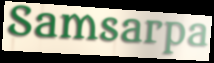
Samsarpa